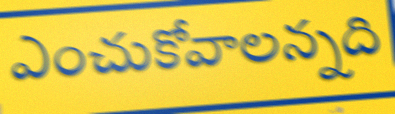
ఎంచుకోవాలన్నది